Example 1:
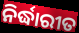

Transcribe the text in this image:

ନିର୍ଦ୍ଧାରୀତ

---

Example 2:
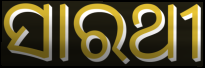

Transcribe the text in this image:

ସାରଥୀ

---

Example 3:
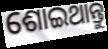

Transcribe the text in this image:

ଶୋଇଥାନ୍ତୁ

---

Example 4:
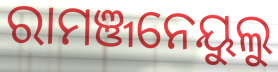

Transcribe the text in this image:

ରାମଞ୍ଜନେୟୁଲୁ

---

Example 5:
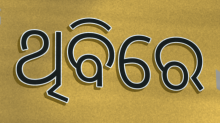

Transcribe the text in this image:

ଥିବିରେ